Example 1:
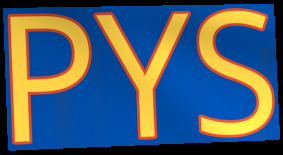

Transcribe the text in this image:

PYS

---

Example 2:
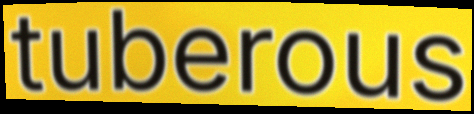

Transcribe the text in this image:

tuberous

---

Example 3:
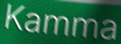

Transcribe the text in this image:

Kamma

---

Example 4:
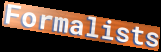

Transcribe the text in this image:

Formalists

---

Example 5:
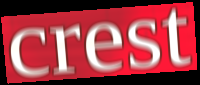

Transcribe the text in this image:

crest